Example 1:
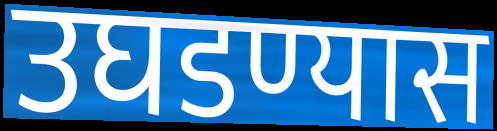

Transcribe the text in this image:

उघडण्यास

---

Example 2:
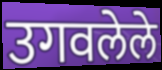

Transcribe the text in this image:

उगवलेले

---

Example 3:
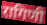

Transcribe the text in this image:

रागिणी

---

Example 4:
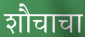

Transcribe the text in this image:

शौचाचा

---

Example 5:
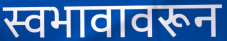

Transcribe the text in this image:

स्वभावावरून